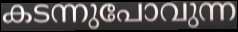
കടന്നുപോവുന്ന